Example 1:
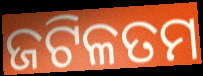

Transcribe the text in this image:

ଜଟିଳତମ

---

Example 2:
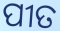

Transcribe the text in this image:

ପୀତ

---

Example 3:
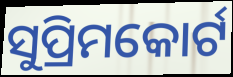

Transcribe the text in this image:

ସୁପ୍ରିମକୋର୍ଟ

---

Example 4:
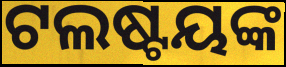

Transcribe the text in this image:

ଟଲଷ୍ଟୟଙ୍କ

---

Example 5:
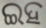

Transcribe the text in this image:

ଇହ